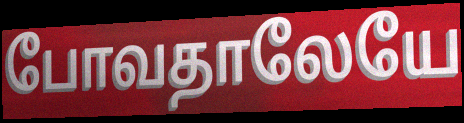
போவதாலேயே